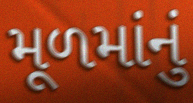
મૂળમાંનું